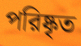
পরিষ্কৃত